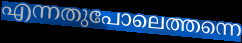
എന്നതുപോലെത്തന്നെ